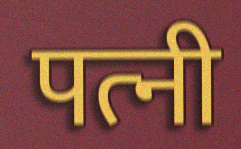
पत्‍नी